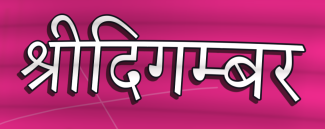
श्रीदिगम्बर